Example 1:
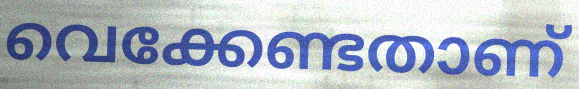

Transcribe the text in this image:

വെക്കേണ്ടതാണ്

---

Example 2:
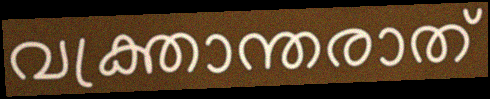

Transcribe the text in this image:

വക്ത്രാന്തരാത്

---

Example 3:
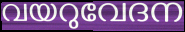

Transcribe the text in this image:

വയറുവേദന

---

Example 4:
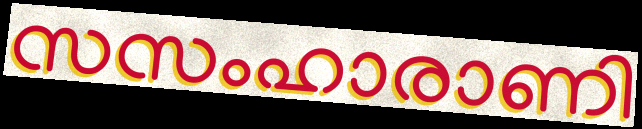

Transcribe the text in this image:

സസംഹാരാണി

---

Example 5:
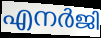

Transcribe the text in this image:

എനർജി